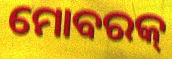
ମୋବରକ୍